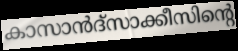
കാസാൻദ്സാക്കീസിന്റെ